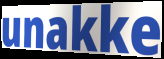
unakke